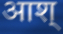
आश्